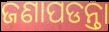
ଜଣାପଡନ୍ତା